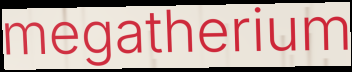
megatherium